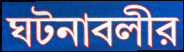
ঘটনাবলীর